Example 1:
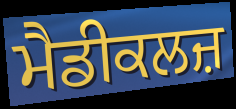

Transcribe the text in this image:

ਮੈਡੀਕਲਜ਼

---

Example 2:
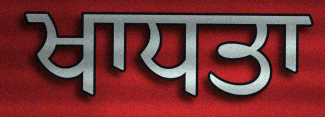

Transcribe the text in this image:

ਖਾਧਤਾ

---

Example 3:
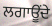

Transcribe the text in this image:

ਲਗਾਊਂਦੇ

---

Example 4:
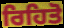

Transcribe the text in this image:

ਰਿਹਿਤੋ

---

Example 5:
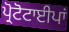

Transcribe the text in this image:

ਪ੍ਰੋਟੋਟਾਈਪਾਂ